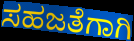
ಸಹಜತೆಗಾಗಿ